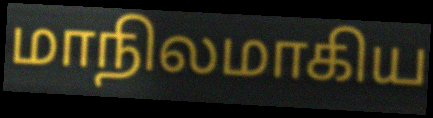
மாநிலமாகிய